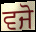
ਵਜੋ